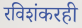
रविशंकरही